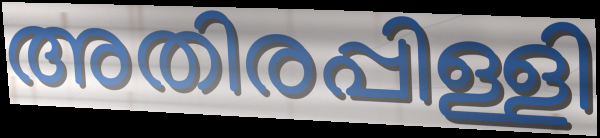
അതിരപ്പിള്ളി